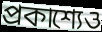
প্রকাশ্যেও